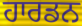
ਹਾਰਡਨ